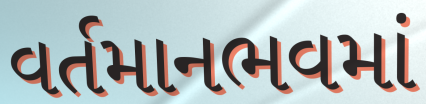
વર્તમાનભવમાં